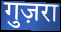
गुज़रा